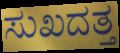
ಸುಖದತ್ತ